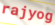
rajyog